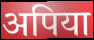
अपिया